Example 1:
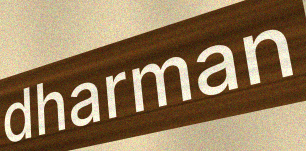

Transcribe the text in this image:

dharman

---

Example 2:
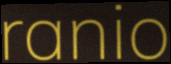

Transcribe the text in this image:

ranio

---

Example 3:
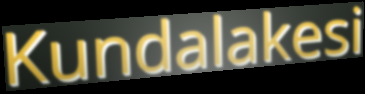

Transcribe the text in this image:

Kundalakesi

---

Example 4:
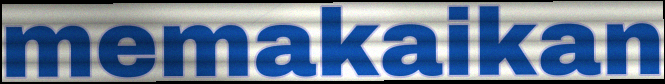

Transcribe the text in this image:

memakaikan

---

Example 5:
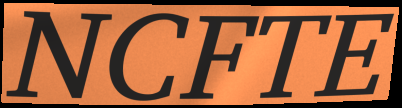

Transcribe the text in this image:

NCFTE